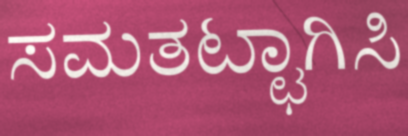
ಸಮತಟ್ಟಾಗಿಸಿ